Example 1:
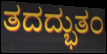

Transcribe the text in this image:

ತದದ್ಭುತಂ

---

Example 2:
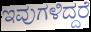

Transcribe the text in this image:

ಇವುಗಳಿದ್ದರೆ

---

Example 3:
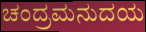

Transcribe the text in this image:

ಚಂದ್ರಮನುದಯ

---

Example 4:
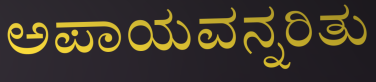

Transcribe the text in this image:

ಅಪಾಯವನ್ನರಿತು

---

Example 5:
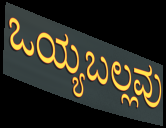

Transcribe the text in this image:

ಒಯ್ಯಬಲ್ಲವು